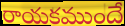
రాయకముందే